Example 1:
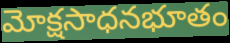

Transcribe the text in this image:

మోక్షసాధనభూతం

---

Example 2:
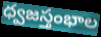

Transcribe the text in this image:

ధ్వజస్తంభాల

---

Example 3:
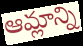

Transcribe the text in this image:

ఆమ్లాన్ని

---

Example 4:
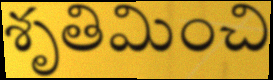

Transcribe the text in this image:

శృతిమించి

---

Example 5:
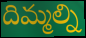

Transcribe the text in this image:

దిమ్మల్ని